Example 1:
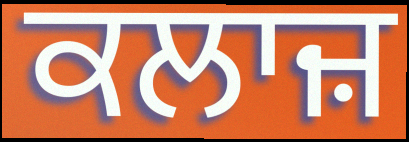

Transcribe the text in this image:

ਕਲਾਜ਼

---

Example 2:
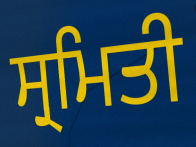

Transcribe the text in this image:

ਸ੍ਰਮਿਤੀ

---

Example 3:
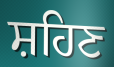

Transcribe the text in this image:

ਸ਼ਹਿਣ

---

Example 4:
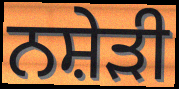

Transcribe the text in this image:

ਨਸ਼ੇੜੀ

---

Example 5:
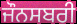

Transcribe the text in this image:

ਜੌਨਸਬਰੀ